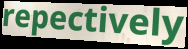
repectively